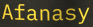
Afanasy